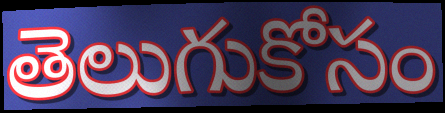
తెలుగుకోసం